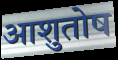
आशुतोष